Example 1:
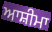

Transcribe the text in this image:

ਆਸ਼ੀਮਾ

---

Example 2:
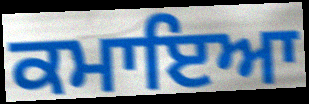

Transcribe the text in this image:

ਕਮਾਇਆ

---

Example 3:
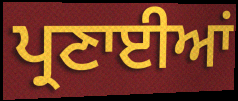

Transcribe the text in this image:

ਪ੍ਰਣਾਈਆਂ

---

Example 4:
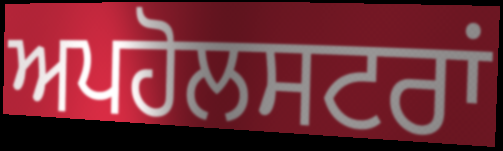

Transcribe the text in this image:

ਅਪਹੋਲਸਟਰਾਂ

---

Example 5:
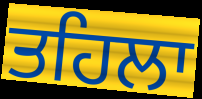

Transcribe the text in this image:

ਤਹਿਲਾ